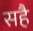
सहै